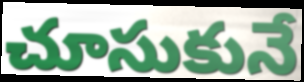
చూసుకునే